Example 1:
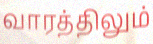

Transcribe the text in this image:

வாரத்திலும்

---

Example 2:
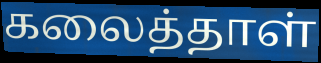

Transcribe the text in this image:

கலைத்தாள்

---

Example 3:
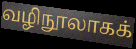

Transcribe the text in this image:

வழிநூலாகக்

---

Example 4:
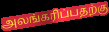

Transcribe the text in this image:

அலங்கரிப்பதற்கு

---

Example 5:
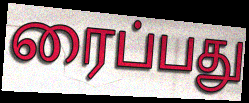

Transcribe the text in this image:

ரைப்பது